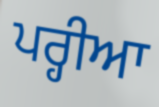
ਪਰ੍ਹੀਆ